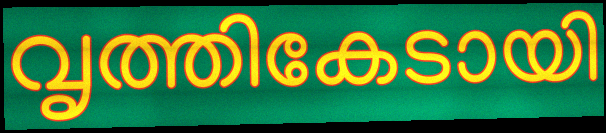
വൃത്തികേടായി